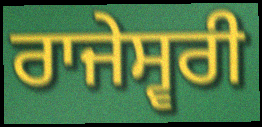
ਰਾਜੇਸ੍ਵਰੀ